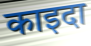
काइदा